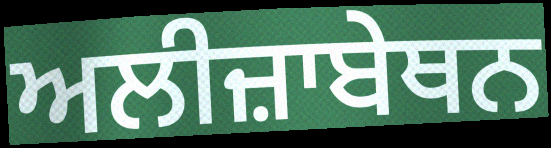
ਅਲੀਜ਼ਾਬੇਥਨ